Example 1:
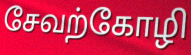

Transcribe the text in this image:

சேவற்கோழி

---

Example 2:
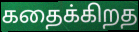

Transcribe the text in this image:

கதைக்கிறத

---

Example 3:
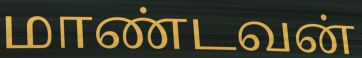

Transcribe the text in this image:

மாண்டவன்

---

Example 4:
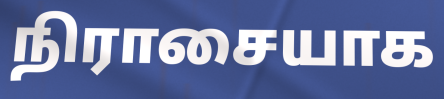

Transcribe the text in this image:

நிராசையாக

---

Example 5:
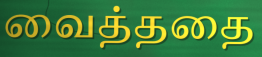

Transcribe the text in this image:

வைத்ததை